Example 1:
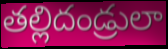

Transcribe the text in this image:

తల్లిదండ్రులా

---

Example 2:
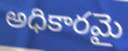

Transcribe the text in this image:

అధికారమై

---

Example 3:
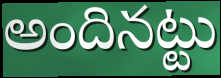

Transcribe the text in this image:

అందినట్టు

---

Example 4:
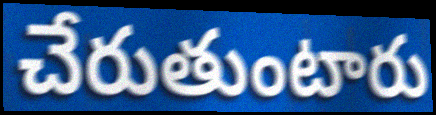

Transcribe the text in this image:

చేరుతుంటారు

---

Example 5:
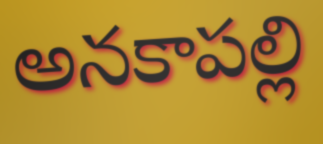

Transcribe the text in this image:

అనకాపల్లి